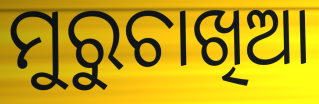
ମୁରୁଚାଖିଆ